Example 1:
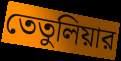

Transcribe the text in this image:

তেতুলিয়ার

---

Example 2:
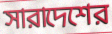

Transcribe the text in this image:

সারাদেশের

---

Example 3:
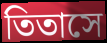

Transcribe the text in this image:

তিতাসে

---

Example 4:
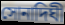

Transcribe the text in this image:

সোনাদিঘী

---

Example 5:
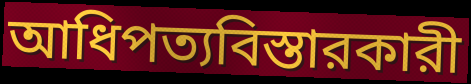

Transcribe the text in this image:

আধিপত্যবিস্তারকারী